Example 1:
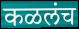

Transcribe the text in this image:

कळलंच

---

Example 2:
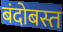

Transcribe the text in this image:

बंदोबस्त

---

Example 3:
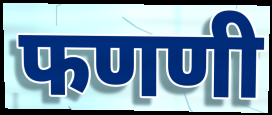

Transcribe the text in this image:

फणणी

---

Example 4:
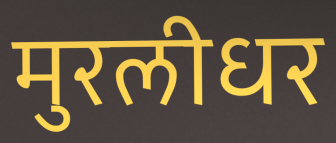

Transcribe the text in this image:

मुरलीधर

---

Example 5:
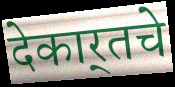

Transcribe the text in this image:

देकार्तचे